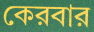
কেরবার